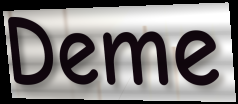
Deme